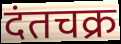
दंतचक्र